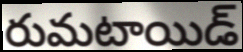
రుమటాయిడ్